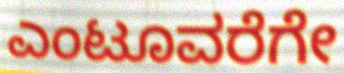
ಎಂಟೂವರೆಗೇ